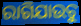
ରାଗିଯାଉଚୁ